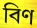
বিণ